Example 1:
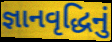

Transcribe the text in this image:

જ્ઞાનવૃદ્ધિનું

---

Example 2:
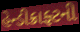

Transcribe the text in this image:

હેન્ડીક્રાફ્ટની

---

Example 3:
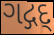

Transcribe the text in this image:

ગદ્ગદ્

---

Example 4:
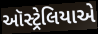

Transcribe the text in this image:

ઑસ્ટ્રેલિયાએ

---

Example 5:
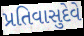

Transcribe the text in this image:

પ્રતિવાસુદેવે